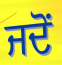
ਜਦੋਂ